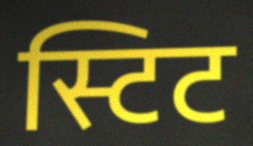
स्टिट